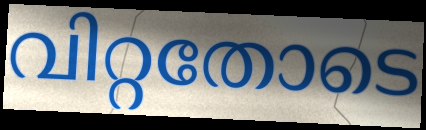
വിറ്റതോടെ